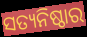
ସତ୍ୟନିଷ୍ଠାର